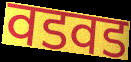
वडवड